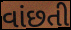
વાંછતી